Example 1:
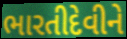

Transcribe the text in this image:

ભારતીદેવીને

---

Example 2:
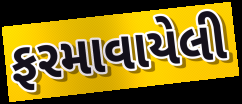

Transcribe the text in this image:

ફરમાવાયેલી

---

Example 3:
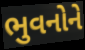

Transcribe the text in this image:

ભુવનોને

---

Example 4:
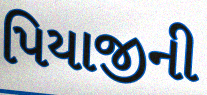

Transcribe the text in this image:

પિયાજીની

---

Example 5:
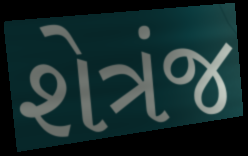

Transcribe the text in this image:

શેત્રંજ